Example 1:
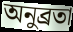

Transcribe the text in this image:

অনুব্রতা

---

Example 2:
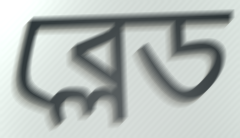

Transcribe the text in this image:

ব্লেড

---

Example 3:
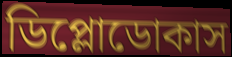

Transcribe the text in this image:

ডিপ্লোডোকাস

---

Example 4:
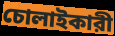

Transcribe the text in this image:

চোলাইকারী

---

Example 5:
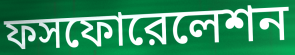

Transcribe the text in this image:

ফসফোরেলেশন